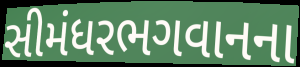
સીમંધરભગવાનના